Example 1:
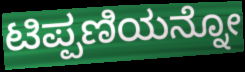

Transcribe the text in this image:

ಟಿಪ್ಪಣಿಯನ್ನೋ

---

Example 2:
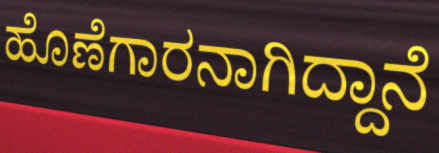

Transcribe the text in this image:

ಹೊಣೆಗಾರನಾಗಿದ್ದಾನೆ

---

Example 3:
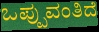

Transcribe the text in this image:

ಒಪ್ಪುವಂತಿದೆ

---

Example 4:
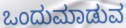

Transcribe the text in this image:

ಒಂದುಮಾಡುವ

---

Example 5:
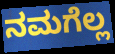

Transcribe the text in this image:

ನಮಗೆಲ್ಲ